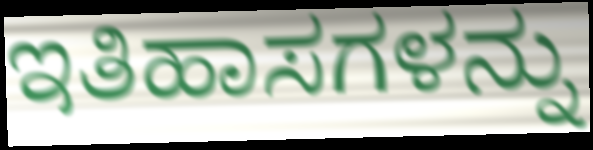
ಇತಿಹಾಸಗಳನ್ನು